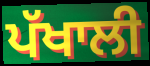
ਪੱਖਾਲੀ